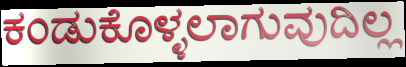
ಕಂಡುಕೊಳ್ಳಲಾಗುವುದಿಲ್ಲ